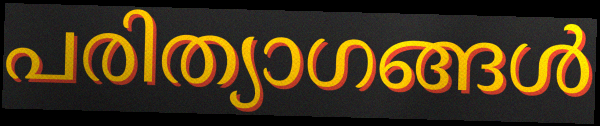
പരിത്യാഗങ്ങൾ